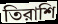
তিরাশি